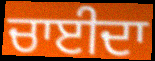
ਚਾਈਦਾ